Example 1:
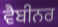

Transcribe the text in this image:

ਵੈਬੀਨਰ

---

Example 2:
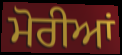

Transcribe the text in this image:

ਮੋਰੀਆਂ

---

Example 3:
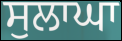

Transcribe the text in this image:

ਸੁਲਾਘਾ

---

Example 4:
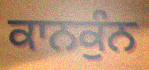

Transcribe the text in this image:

ਕਾਨਕੁੰਨ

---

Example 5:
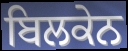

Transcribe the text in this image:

ਬਿਲਕੇਨ